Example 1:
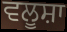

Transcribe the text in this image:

ਵਲੂਸ਼ਾ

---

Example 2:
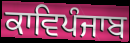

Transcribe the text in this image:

ਕਾਵਿਪੰਜਾਬ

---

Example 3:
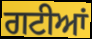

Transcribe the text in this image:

ਗਟੀਆਂ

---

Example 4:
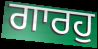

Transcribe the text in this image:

ਗਾਰਹੁ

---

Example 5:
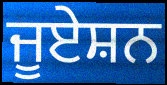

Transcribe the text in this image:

ਜੂਏਸ਼ਨ